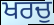
ਖਰਚੁ